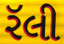
રૅલી